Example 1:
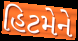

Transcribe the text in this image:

હિટમેને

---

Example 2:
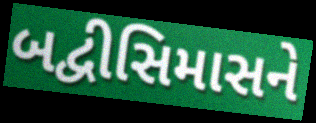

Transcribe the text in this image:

બદ્વીસિમાસને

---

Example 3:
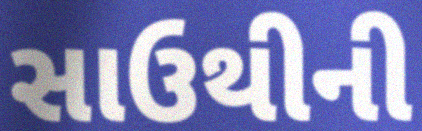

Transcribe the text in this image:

સાઉથીની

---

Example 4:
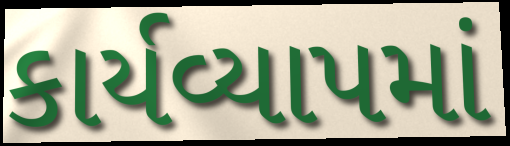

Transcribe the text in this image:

કાર્યવ્યાપમાં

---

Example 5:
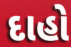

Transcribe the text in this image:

દાહો